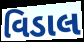
વિડાલ